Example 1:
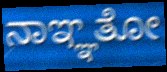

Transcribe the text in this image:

ನಾಞ್ಞತೋ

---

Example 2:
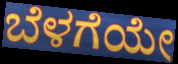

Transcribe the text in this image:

ಬೆಳಗೆಯೇ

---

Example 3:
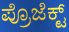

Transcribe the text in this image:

ಪ್ರೊಜೆಕ್ಟ್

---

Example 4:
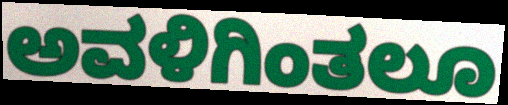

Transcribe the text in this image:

ಅವಳಿಗಿಂತಲೂ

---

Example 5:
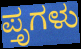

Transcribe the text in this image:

ಪ್ತೃಗಳು